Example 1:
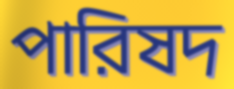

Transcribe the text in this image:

পারিষদ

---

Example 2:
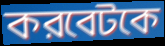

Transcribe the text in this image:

করবেটকে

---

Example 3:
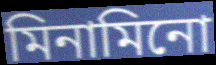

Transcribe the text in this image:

মিনামিনো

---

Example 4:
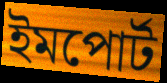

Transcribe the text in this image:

ইমপোর্ট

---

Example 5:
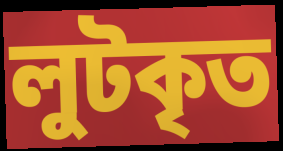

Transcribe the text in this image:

লুটকৃত